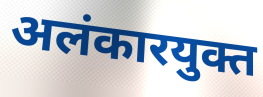
अलंकारयुक्त